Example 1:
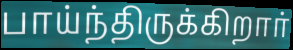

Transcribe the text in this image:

பாய்ந்திருக்கிறார்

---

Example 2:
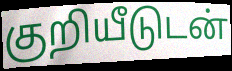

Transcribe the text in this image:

குறியீடுடன்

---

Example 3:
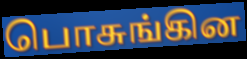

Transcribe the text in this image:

பொசுங்கின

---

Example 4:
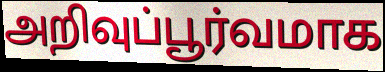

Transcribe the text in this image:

அறிவுப்பூர்வமாக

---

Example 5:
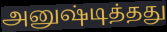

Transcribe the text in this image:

அனுஷ்டித்தது